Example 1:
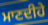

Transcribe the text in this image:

ਮਾਣਦੀਹੇ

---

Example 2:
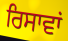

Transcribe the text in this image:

ਰਿਸਾਵਾਂ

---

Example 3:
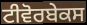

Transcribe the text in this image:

ਟੀਵੋਰਬੇਕਸ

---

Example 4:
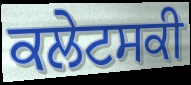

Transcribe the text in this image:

ਕਲੇਟਸਕੀ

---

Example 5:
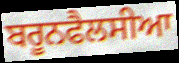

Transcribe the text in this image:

ਬਰੂਨਫੈਲਸੀਆ